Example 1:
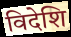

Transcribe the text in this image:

विदेशि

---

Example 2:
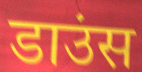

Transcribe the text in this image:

डाउंस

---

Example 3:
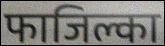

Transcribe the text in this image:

फाजिल्का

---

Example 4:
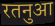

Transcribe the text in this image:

रतनुआ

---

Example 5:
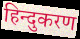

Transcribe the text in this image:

हिन्दुकरण